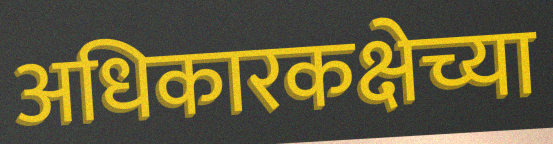
अधिकारकक्षेच्या